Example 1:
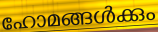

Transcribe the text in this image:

ഹോമങ്ങൾക്കും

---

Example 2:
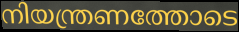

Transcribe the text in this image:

നിയന്ത്രണത്തോടെ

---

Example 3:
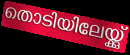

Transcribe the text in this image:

തൊടിയിലേയ്ക്കു്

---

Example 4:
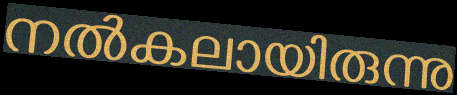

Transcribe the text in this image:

നൽകലായിരുന്നു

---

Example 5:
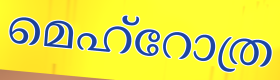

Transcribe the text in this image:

മെഹ്റോത്ര